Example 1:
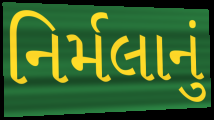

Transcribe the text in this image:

નિર્મલાનું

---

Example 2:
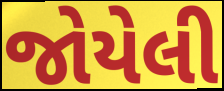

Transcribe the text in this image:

જોયેલી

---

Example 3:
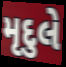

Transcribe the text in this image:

મૃદુલે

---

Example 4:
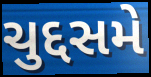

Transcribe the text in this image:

ચુદ્દસમે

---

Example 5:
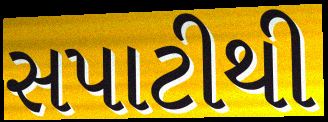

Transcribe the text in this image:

સપાટીથી